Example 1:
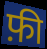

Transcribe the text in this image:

फ़ी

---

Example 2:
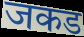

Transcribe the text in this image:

जकड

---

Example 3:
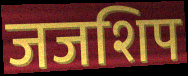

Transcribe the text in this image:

जजशिप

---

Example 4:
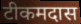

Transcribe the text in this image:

टीकमदास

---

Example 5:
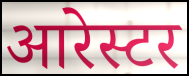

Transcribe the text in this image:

आरेस्टर